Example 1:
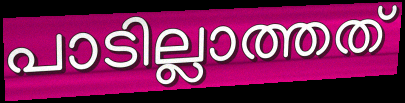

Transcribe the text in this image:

പാടില്ലാത്തത്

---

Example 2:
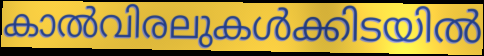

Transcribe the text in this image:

കാൽവിരലുകൾക്കിടയിൽ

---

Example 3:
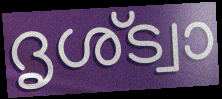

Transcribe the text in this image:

ദൃശ്ട്വാ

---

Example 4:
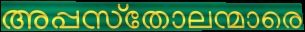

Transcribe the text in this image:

അപ്പസ്‌തോലന്മാരെ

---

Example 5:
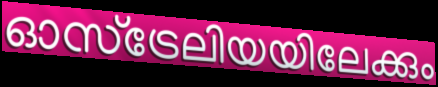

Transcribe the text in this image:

ഓസ്ട്രേലിയയിലേക്കും